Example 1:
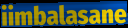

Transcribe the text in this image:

iimbalasane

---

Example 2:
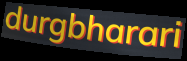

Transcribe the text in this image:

durgbharari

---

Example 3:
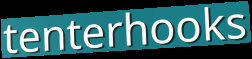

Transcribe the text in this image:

tenterhooks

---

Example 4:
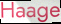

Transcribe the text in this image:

Haage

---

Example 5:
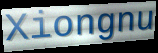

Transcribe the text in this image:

Xiongnu